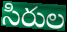
సిరుల